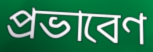
প্রভাবেণ